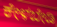
ಕೇಳಬೇಡಿ